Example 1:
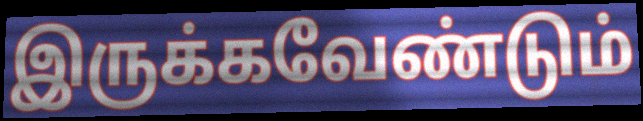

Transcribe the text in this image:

இருக்கவேண்டும்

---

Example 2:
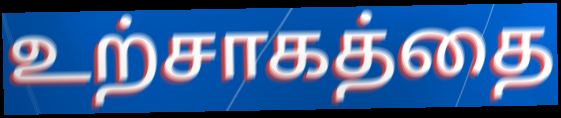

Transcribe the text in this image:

உற்சாகத்தை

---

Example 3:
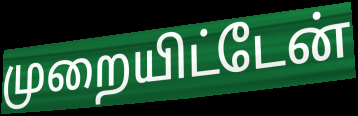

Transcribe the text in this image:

முறையிட்டேன்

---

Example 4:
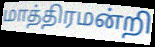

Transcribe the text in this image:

மாத்திரமன்றி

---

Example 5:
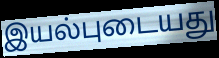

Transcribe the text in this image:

இயல்புடையது